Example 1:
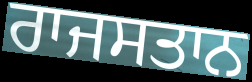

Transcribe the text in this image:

ਰਾਜਸਤਾਨ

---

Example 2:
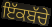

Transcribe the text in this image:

ਇੱਕਬੱਚੇ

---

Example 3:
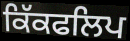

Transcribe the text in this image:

ਕਿੱਕਫਲਿਪ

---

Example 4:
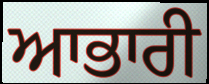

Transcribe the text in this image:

ਆਭਾਰੀ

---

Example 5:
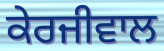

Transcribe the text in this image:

ਕੇਰਜੀਵਾਲ